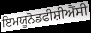
ਇਮਯੂਨੋਡਫੀਸ਼ੀਐਂਸੀ